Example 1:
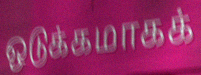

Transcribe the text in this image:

ஒடுக்கமாகக்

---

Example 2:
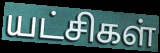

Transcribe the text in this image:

யட்சிகள்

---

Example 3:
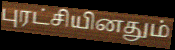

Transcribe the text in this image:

புரட்சியினதும்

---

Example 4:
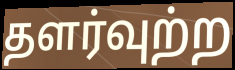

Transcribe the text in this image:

தளர்வுற்ற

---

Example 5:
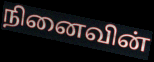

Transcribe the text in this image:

நினைவின்